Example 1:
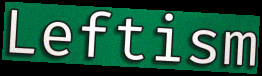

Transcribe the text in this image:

Leftism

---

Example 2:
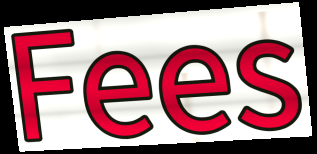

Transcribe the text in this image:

Fees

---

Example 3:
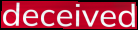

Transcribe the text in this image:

deceived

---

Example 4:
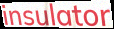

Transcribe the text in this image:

insulator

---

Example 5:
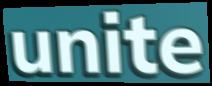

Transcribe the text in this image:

unite